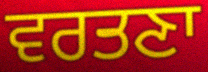
ਵਰਤਣਾ